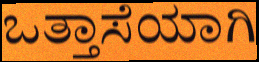
ಒತ್ತಾಸೆಯಾಗಿ